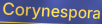
Corynespora